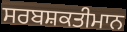
ਸਰਬਸ਼ਕਤੀਮਾਨ